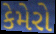
કેમેરો